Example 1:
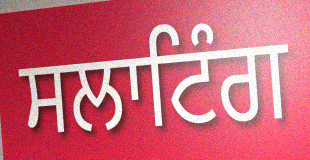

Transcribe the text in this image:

ਸਲਾਟਿੰਗ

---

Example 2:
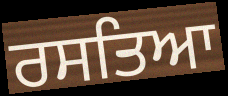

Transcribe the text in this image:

ਰਸਤਿਆ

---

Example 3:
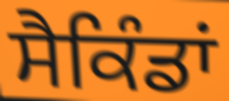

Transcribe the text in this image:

ਸੈਕਿੰਡਾਂ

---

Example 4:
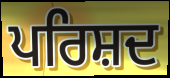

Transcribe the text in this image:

ਪਰਿਸ਼ਦ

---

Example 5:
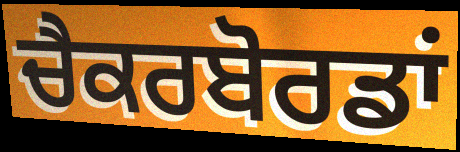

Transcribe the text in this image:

ਚੈਕਰਬੋਰਡਾਂ